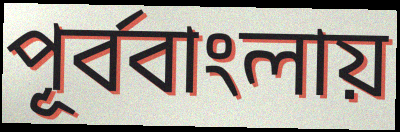
পূর্ববাংলায়